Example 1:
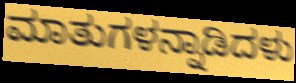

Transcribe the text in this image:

ಮಾತುಗಳನ್ನಾಡಿದಳು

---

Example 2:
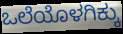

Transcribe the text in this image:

ಒಲೆಯೊಳಗಿಕ್ಕು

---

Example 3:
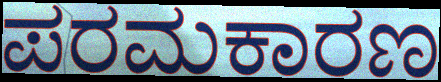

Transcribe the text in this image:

ಪರಮಕಾರಣ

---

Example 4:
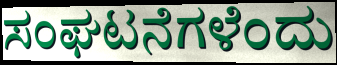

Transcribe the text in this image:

ಸಂಘಟನೆಗಳೆಂದು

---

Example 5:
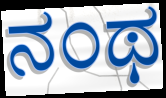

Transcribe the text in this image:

ನಂಥ